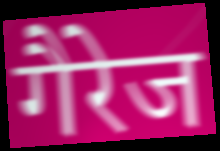
गैरेज